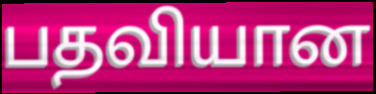
பதவியான